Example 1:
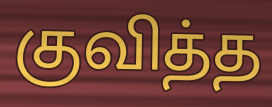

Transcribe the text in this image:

குவித்த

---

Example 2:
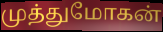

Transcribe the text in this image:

முத்துமோகன்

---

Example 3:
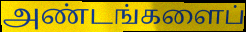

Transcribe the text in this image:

அண்டங்களைப்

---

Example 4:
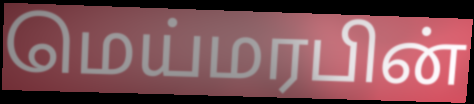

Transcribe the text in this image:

மெய்மரபின்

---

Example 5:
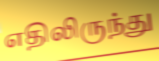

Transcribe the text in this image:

எதிலிருந்து